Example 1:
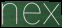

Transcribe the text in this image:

nex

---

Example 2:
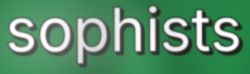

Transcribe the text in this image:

sophists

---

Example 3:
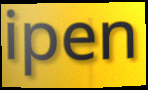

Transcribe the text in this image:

ipen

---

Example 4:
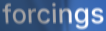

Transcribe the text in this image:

forcings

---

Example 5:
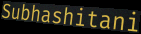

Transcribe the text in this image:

Subhashitani